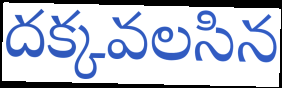
దక్కవలసిన